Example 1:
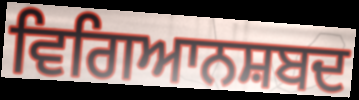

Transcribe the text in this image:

ਵਿਗਿਆਨਸ਼ਬਦ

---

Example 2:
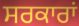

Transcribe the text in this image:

ਸਰਕਾਰਾਂ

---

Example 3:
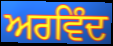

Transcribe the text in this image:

ਅਰਵਿੰਦ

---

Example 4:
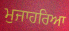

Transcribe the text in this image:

ਮੁਜਾਹਰਿਆ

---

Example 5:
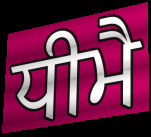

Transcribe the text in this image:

ਧੀਮੈ